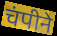
चंपीने